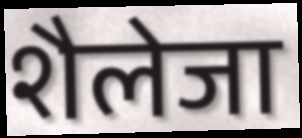
शैलेजा